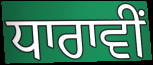
ਧਾਰਾਵੀਂ